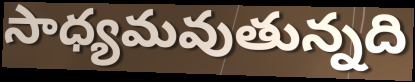
సాధ్యమవుతున్నది